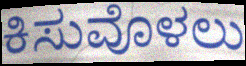
ಕಿಸುವೊಳಲು